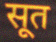
सूत